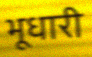
भूधारी